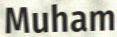
Muham